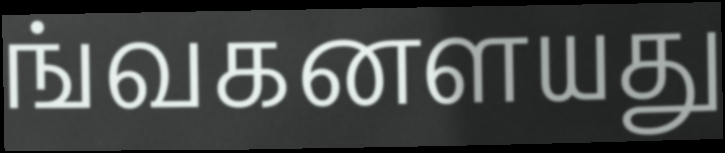
ங்வகனளயது